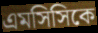
এমসিসিকে